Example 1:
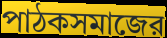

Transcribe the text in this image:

পাঠকসমাজের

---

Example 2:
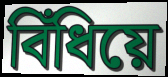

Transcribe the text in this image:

বিঁধিয়ে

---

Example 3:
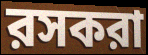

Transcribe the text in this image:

রসকরা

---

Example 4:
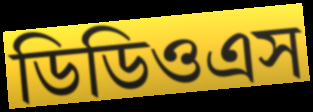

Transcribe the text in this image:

ডিডিওএস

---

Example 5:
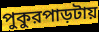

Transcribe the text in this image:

পুকুরপাড়টায়